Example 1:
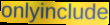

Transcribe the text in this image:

onlyinclude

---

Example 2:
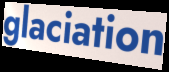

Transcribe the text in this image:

glaciation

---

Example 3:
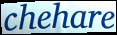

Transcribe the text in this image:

chehare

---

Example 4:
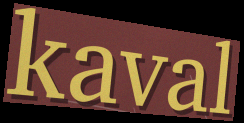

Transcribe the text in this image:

kaval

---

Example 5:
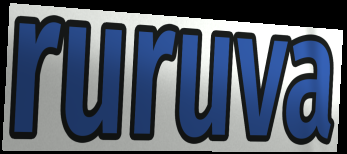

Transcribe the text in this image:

ruruva